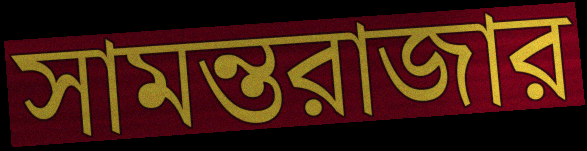
সামন্তরাজার